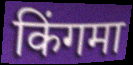
किंगमा